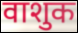
वाशुक